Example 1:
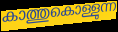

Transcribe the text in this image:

കാത്തുകൊള്ളുന്ന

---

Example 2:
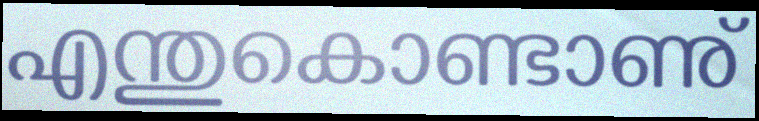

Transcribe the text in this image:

എന്തുകൊണ്ടാണു്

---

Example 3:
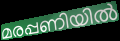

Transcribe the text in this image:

മരപ്പണിയിൽ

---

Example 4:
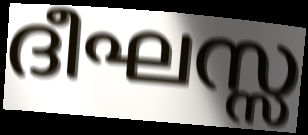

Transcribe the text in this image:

ദീഘസ്സ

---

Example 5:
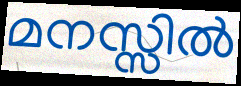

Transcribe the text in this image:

മനസ്സിൽ